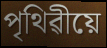
পৃথিৱীয়ে